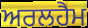
ਅਰਲਹੈਮ